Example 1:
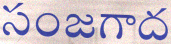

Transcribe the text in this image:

సంజగాద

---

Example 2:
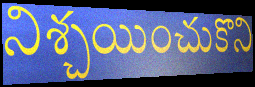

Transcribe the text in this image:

నిశ్చయించుకొని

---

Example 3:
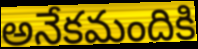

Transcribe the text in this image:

అనేకమందికి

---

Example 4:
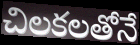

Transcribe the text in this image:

చిలకలతోనే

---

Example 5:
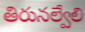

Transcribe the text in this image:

తిరునల్వేలి